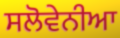
ਸਲੋਵੇਨੀਆ